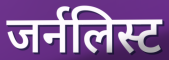
जर्नलिस्ट